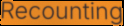
Recounting